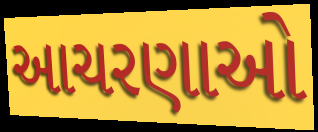
આચરણાઓ